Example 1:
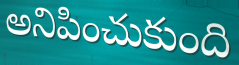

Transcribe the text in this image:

అనిపించుకుంది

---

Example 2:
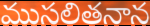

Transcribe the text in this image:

ముసలితనాన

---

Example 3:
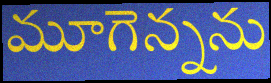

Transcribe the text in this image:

మూగెన్నను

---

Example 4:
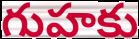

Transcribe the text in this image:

గుహకు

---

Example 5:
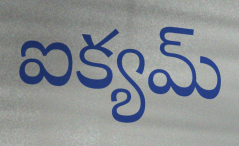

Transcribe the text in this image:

ఐక్యమ్